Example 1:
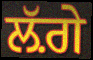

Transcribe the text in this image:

ਲ਼ੱਗੇ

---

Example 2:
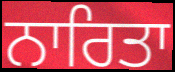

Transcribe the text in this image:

ਨਾਰਿਤਾ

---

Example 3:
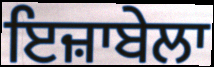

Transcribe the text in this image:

ਇਜ਼ਾਬੇਲਾ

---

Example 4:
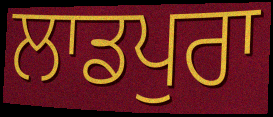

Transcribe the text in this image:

ਲਾਡਪੁਰਾ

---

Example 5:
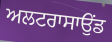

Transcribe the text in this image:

ਅਲਟਰਾਸਾਉਂਡ